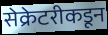
सेक्रेटरीकडून